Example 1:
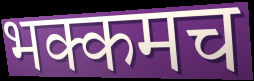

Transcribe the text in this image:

भक्कमच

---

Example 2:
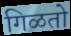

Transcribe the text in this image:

गिळतो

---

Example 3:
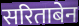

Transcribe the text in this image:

सरिताबेन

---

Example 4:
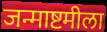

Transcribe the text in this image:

जन्माष्टमीला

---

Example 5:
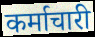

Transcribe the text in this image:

कर्माचारी